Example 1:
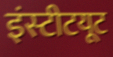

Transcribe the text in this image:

इंस्‍टीटयूट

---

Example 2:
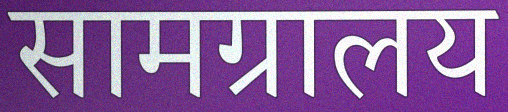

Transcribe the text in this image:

सामग्रालय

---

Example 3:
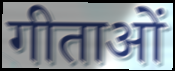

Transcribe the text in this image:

गीताओं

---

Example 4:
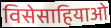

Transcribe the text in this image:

विसेसाहियाओ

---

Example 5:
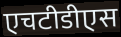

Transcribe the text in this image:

एचटीडीएस